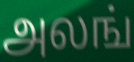
அலங்